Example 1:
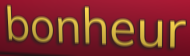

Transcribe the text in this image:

bonheur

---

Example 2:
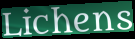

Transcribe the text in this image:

Lichens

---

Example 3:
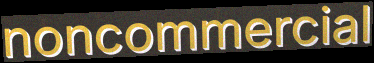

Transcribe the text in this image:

noncommercial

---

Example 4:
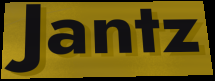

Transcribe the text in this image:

Jantz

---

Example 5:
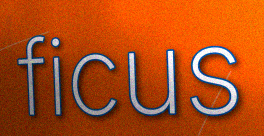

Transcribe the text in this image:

ficus